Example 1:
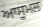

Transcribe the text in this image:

ਆਸੂਮਲ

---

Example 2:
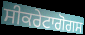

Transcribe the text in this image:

ਸੀਕਰੇਟਾਗੋਗਸ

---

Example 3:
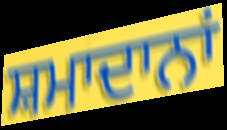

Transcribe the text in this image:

ਸ਼ਮਾਦਾਨਾਂ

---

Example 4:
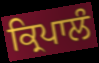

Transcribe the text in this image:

ਕ੍ਰਿਪਾਲੰ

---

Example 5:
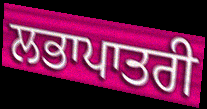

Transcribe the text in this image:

ਲਭਾਪਾਤਰੀ